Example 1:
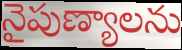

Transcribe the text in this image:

నైపుణ్యాలను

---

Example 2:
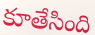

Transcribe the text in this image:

కూతేసింది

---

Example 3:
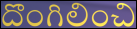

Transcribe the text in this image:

దొంగిలించి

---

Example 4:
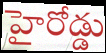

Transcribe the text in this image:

హైరోడ్డు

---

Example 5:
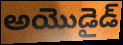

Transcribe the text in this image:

అయొడైడ్